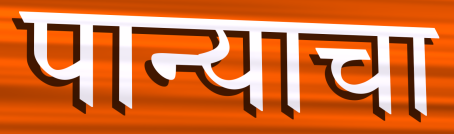
पान्याचा